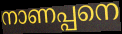
നാണപ്പനെ